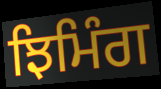
ਝਿਮਿੰਗ